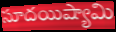
సూదయిష్యామి